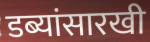
डब्यांसारखी